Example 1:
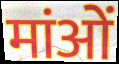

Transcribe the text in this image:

मांओं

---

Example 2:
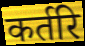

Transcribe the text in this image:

कर्तरि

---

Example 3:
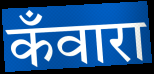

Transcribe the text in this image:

कँवारा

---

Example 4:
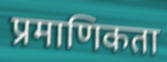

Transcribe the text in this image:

प्रमाणिकता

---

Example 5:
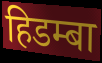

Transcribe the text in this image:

हिडम्बा